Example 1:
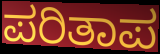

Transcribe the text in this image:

ಪರಿತಾಪ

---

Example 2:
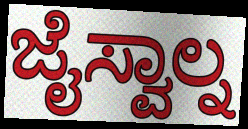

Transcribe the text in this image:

ಜೈಸ್ವಾಲ್ನ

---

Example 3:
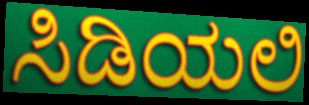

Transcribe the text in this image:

ಸಿಡಿಯಲಿ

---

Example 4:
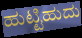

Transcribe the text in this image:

ಹುಟ್ಟಿಹುದು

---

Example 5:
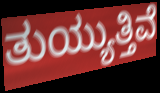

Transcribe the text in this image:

ತುಯ್ಯುತ್ತಿವೆ